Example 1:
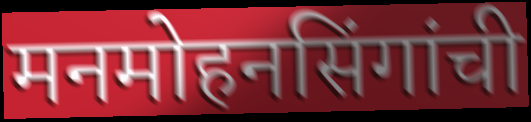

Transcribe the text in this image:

मनमोहनसिंगांची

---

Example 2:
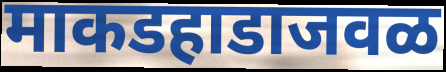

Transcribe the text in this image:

माकडहाडाजवळ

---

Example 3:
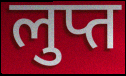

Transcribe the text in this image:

लुप्त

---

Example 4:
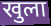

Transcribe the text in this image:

खुला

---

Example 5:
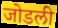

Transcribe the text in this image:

जोडली